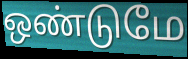
ஒண்டுமே